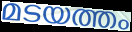
മടയത്തം